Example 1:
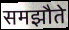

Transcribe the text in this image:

समझौते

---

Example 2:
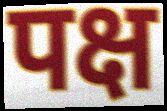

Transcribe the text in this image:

पक्ष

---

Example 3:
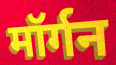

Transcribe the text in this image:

मॉर्गन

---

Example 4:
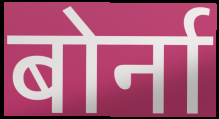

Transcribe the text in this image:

बोर्ना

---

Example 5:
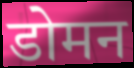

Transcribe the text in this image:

डोमन